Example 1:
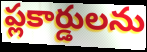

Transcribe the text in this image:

ప్లకార్డులను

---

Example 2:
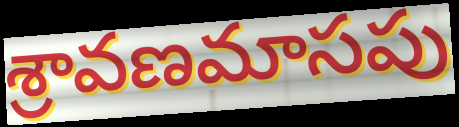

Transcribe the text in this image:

శ్రావణమాసపు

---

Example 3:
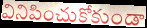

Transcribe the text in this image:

వినిపించుకోకుండా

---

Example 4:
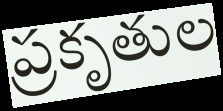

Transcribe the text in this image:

ప్రకృతుల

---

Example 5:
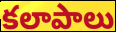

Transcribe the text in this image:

కలాపాలు